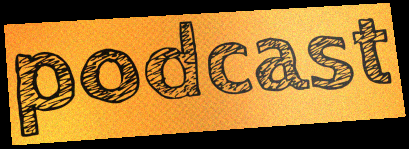
podcast